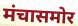
मंचासमोर